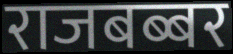
राजबब्बर